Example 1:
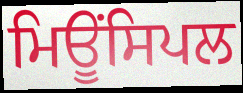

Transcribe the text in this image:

ਮਿਊਂਸਿਪਲ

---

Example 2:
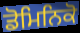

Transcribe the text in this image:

ਡੋਮਿਨਿਕੋ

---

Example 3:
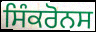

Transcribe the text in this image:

ਸਿੰਕਰੋਨਸ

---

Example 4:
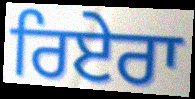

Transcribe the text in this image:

ਰਿਏਰਾ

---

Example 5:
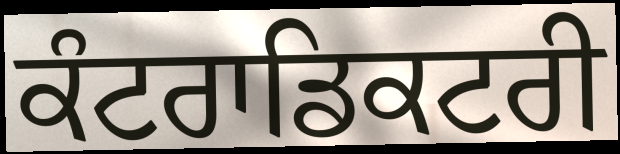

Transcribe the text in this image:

ਕੰਟਰਾਡਿਕਟਰੀ